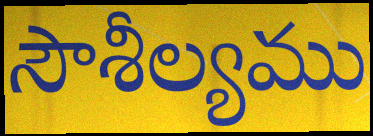
సౌశీల్యము